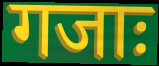
गजाः